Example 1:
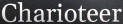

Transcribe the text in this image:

Charioteer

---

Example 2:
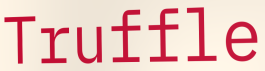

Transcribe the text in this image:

Truffle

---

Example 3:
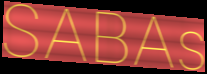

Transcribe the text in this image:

SABAs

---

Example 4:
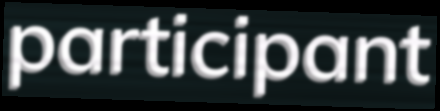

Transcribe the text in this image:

participant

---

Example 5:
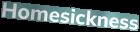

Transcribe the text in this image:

Homesickness